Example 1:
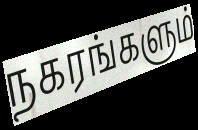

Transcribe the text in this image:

நகரங்களும்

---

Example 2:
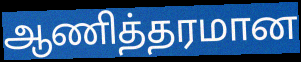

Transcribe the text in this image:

ஆணித்தரமான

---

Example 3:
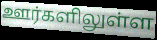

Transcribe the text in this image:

ஊர்களிலுள்ள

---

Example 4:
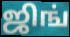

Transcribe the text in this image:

ஜிங்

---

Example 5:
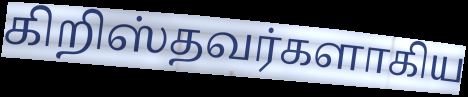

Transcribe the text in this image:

கிறிஸ்தவர்களாகிய